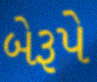
બેરૂપે